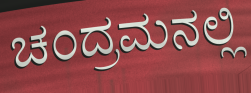
ಚಂದ್ರಮನಲ್ಲಿ